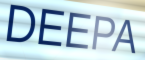
DEEPA